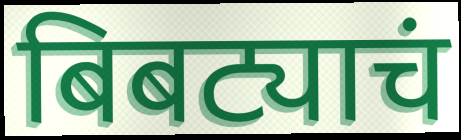
बिबट्याचं